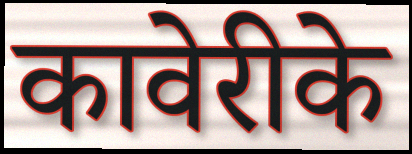
कावेरीके